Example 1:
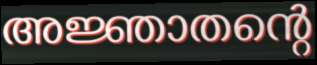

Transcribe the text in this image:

അജ്ഞാതന്റെ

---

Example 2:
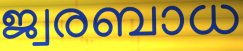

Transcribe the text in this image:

ജ്വരബാധ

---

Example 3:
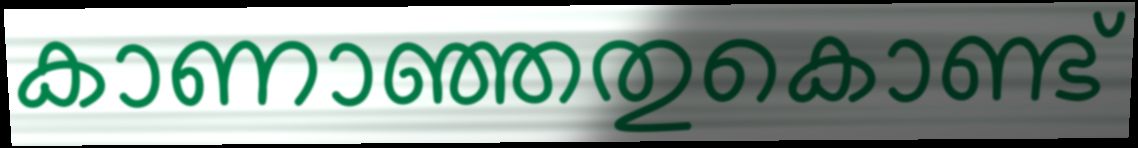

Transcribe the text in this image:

കാണാഞ്ഞതുകൊണ്ട്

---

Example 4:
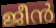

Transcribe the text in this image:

ജീൻ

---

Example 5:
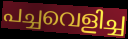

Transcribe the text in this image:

പച്ചവെളിച്ച